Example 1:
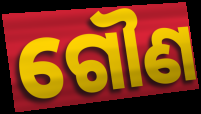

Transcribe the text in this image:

ଗୌଣ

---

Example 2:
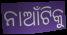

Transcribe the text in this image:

ନାଆଁଟିକୁ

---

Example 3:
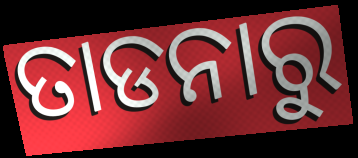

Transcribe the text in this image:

ତାଡନାରୁ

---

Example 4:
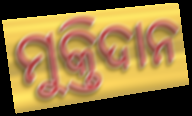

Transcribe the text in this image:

ମୁକ୍ତିଦାନ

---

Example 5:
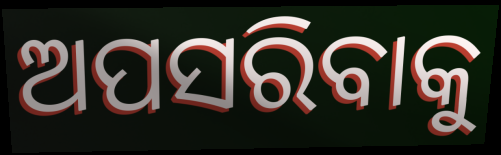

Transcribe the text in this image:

ଅପସରିବାକୁ